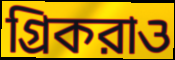
গ্রিকরাও